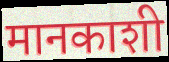
मानकाशी